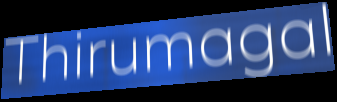
Thirumagal